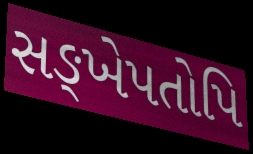
સઙ્ખેપતોપિ